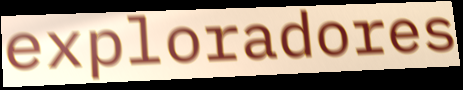
exploradores